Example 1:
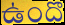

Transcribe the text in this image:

ఉందొ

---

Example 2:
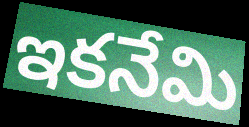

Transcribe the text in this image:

ఇకనేమి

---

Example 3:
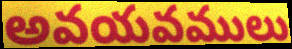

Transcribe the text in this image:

అవయవములు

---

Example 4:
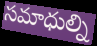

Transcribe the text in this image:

సమాధుల్ని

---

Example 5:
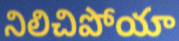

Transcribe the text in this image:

నిలిచిపోయా